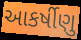
આકર્ષીણુ